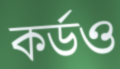
কর্ডও